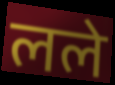
लले